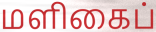
மளிகைப்